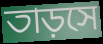
তাড়সে